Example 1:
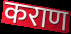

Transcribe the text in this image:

कराण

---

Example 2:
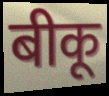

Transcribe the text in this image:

बीकू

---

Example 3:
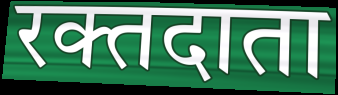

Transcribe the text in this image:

रक्तदाता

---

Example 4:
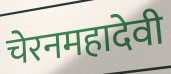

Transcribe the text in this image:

चेरनमहादेवी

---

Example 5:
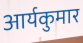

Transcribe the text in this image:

आर्यकुमार